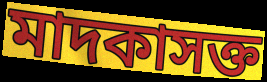
মাদকাসক্ত